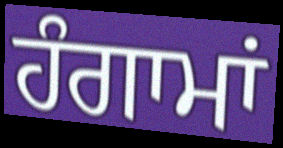
ਹੰਗਾਮਾਂ